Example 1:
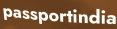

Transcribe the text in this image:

passportindia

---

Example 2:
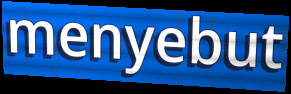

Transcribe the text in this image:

menyebut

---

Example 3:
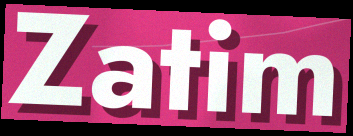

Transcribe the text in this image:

Zatim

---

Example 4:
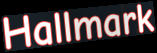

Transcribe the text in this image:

Hallmark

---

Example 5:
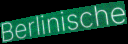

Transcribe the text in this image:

Berlinische